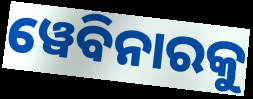
ୱେବିନାରକୁ